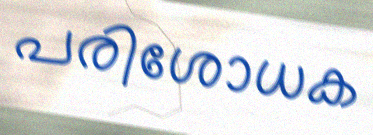
പരിശോധക